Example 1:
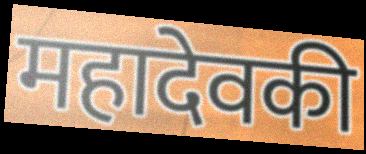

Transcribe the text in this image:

महादेवकी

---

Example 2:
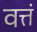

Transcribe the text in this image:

वत्तं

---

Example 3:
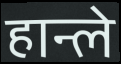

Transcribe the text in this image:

हान्ले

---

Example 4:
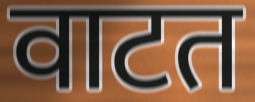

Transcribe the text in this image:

वाटत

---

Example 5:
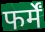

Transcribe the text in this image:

फर्में